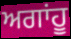
ਅਗਾਂਹੂ